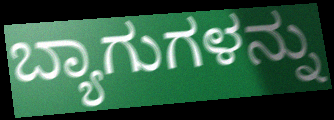
ಬ್ಯಾಗುಗಳನ್ನು